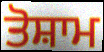
ਤੋਸ਼ਾਮ